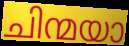
ചിന്മയാ